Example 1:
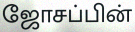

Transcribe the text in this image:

ஜோசப்பின்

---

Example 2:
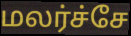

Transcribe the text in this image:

மலர்ச்சே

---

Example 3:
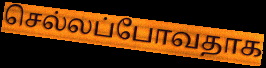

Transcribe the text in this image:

செல்லப்போவதாக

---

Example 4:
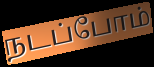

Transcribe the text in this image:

நடப்போம்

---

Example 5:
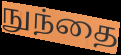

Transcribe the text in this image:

நுந்தை